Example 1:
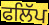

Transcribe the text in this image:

ਫਲਿੱਪ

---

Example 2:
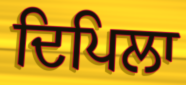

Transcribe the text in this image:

ਦਿਪਿਲਾ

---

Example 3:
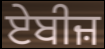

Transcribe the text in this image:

ਏਬੀਜ਼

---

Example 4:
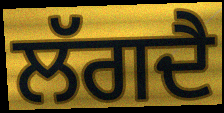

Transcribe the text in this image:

ਲੱਗਦੈ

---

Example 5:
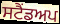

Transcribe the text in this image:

ਸਟੈਂਡਅਪ